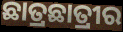
ଛାତ୍ରଛାତ୍ରୀର